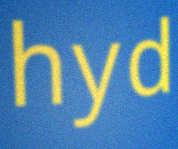
hyd